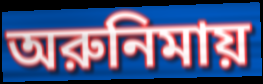
অরুনিমায়